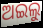
ଅଇଲୁ